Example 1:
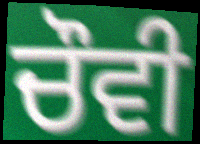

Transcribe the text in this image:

ਚੌਵੀ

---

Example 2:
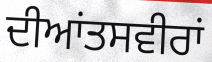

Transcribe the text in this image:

ਦੀਆਂਤਸਵੀਰਾਂ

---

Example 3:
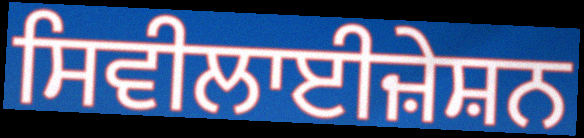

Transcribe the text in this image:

ਸਿਵੀਲਾਈਜ਼ੇਸ਼ਨ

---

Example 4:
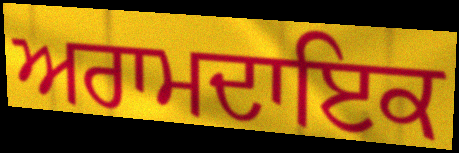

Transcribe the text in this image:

ਅਰਾਮਦਾਇਕ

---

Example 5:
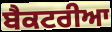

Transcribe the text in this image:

ਬੈਕਟਰੀਆ